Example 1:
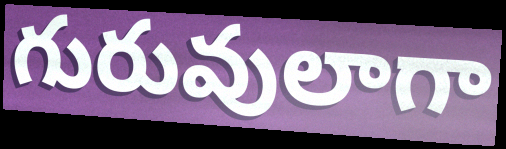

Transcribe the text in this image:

గురువులాగా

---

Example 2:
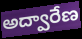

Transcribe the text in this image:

అద్వారేణ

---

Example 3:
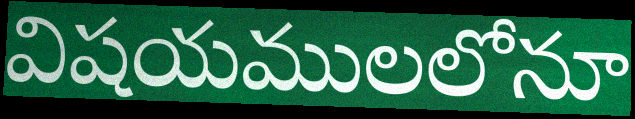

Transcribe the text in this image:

విషయములలోనూ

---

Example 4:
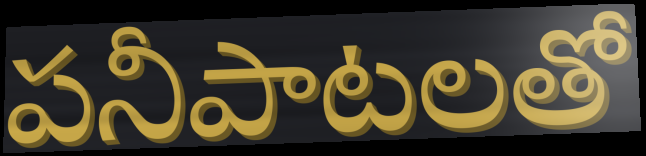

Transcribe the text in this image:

పనీపాటలతో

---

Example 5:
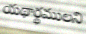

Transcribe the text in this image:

యథార్థములని